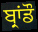
ਬ੍ਰਾਂਡੌ